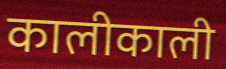
कालीकाली